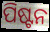
ପିଷ୍ଟନ